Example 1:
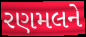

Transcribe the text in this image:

રણમલને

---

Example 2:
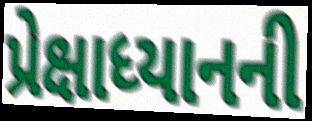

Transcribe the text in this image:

પ્રેક્ષાધ્યાનની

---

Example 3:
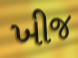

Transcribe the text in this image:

ખીજ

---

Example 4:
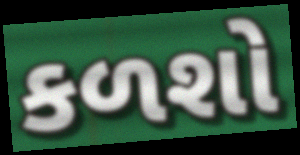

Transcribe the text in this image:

કળશો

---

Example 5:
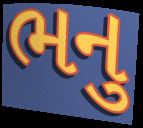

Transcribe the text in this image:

ભનુ